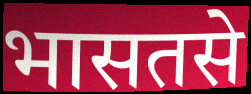
भासतसे